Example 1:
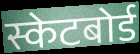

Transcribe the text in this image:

स्केटबोर्ड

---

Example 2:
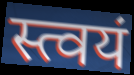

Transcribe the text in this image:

स्त्वयं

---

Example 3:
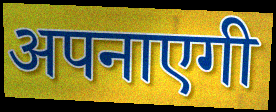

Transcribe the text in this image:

अपनाएगी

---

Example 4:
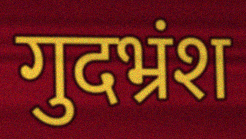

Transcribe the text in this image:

गुदभ्रंश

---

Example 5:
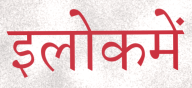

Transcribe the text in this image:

इलोकमें